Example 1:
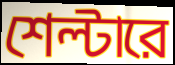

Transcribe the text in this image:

শেল্টারে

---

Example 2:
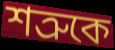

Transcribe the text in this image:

শত্রুকে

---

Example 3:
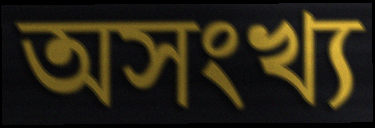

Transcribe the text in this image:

অসংখ্য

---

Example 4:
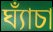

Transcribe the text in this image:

ঘ্যাঁচা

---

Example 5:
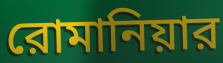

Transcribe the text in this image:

রোমানিয়ার